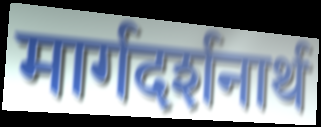
मार्गदर्शनार्थ